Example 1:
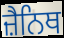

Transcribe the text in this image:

ਜ਼ੈਨਿਥ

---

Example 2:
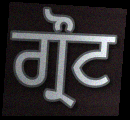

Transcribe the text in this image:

ਗ੍ਰੌਟ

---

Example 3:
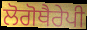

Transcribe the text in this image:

ਲੋਗੋਥੈਰੇਪੀ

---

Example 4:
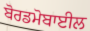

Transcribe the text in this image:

ਬੋਰਡਮੋਬਾਈਲ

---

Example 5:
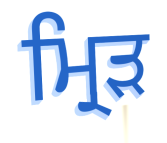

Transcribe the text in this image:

ਮ੍ਰਿੜ